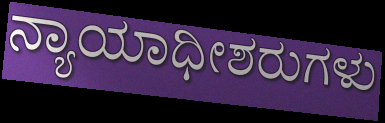
ನ್ಯಾಯಾಧೀಶರುಗಳು